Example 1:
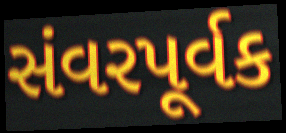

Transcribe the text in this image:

સંવરપૂર્વક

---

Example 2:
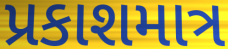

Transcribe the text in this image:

પ્રકાશમાત્ર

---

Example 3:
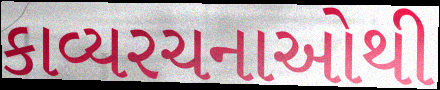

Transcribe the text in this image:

કાવ્યરચનાઓથી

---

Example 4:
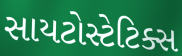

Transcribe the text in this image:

સાયટોસ્ટેટિક્સ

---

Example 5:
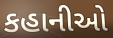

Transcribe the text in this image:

કહાનીઓ